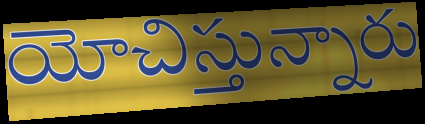
యోచిస్తున్నారు